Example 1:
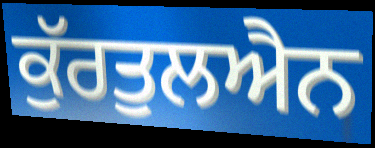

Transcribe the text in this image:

ਕੁੱਰਤੁਲਐਨ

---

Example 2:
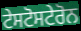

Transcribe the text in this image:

ਟੇਸਟੋਸਟੇਰੋਨ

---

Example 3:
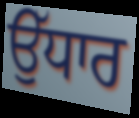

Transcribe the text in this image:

ਉੱਧਾਰ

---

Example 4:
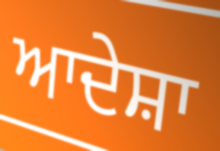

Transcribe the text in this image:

ਆਦੇਸ਼ਾ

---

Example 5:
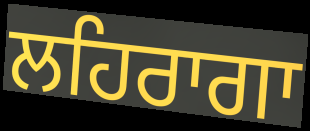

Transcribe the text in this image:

ਲਹਿਰਾਗਾ